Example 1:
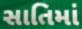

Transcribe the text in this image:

સાતિમાં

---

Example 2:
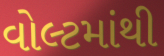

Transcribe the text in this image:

વોલ્ટમાંથી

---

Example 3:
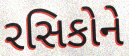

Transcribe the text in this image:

રસિકોને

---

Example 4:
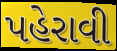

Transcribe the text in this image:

પહેરાવી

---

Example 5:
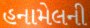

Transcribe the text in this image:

હનામેલની